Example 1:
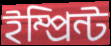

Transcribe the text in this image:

ইম্প্ৰিন্ট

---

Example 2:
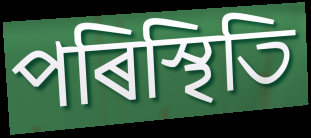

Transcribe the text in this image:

পৰিস্থিতি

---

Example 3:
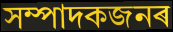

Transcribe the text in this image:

সম্পাদকজনৰ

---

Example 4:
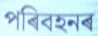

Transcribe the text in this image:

পৰিবহনৰ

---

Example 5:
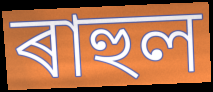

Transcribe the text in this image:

ৰাহুল